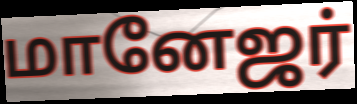
மானேஜர்